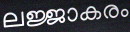
ലജ്ജാകരം